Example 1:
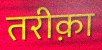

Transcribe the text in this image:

तरीक़ा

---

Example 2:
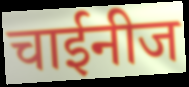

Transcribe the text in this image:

चाईनीज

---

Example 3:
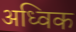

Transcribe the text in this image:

अध्विक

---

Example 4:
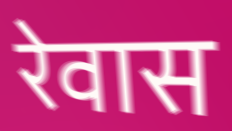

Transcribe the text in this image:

रेवास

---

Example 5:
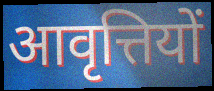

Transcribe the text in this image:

आवृत्तियों